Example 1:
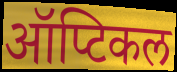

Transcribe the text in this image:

ऑप्टिकल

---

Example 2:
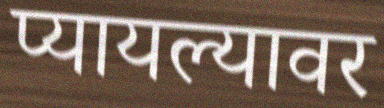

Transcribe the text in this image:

प्यायल्यावर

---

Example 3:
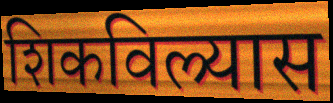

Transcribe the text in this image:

शिकविल्यास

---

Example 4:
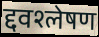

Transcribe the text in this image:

द्दवश्लेषण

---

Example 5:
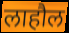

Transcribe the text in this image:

लाहौल